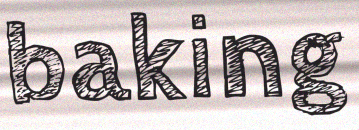
baking